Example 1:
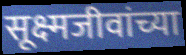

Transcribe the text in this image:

सूक्ष्मजीवांच्या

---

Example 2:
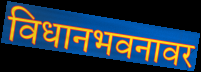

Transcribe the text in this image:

विधानभवनावर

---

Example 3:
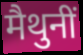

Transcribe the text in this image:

मैथुनीं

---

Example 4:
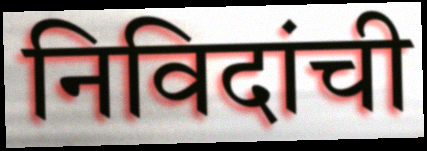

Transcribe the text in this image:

निविदांची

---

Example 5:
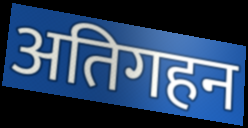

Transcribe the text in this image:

अतिगहन